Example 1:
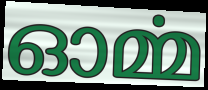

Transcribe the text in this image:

ഓൎമ്മ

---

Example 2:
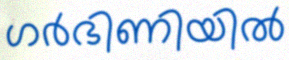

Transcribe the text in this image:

ഗർഭിണിയിൽ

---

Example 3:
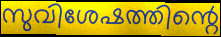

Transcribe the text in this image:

സുവിശേഷത്തിന്റെ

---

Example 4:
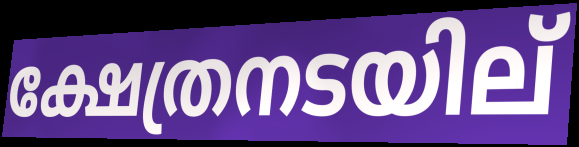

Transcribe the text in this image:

ക്ഷേത്രനടയില്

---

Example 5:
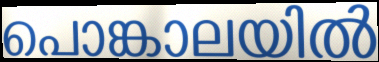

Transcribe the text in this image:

പൊങ്കാലയിൽ